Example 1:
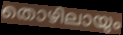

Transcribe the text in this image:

തൊഴിലായും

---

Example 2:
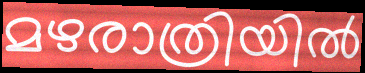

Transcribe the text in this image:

മഴരാത്രിയിൽ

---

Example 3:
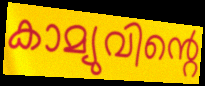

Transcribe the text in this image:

കാമ്യുവിന്റെ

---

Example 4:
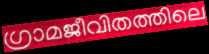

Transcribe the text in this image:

ഗ്രാമജീവിതത്തിലെ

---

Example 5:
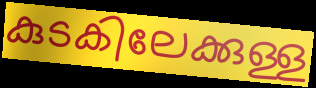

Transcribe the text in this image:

കുടകിലേക്കുള്ള